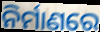
ନିର୍ମାଣରେ